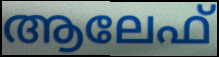
ആലേഫ്